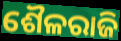
ଶୈଳରାଜି